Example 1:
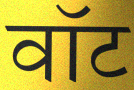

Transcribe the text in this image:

वॉट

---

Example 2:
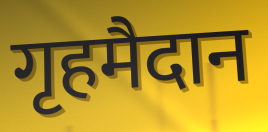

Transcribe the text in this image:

गृहमैदान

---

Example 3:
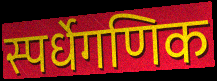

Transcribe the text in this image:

स्पर्धेगणिक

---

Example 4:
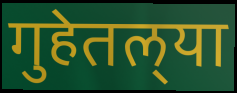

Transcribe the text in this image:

गुहेतल्या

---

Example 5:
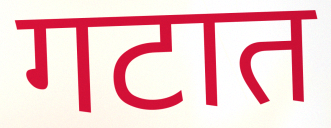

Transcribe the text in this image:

गटात